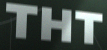
THT